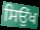
ਸਿਉਂਖ